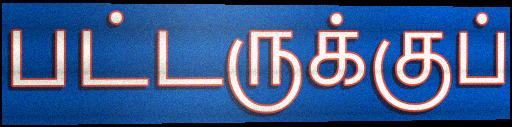
பட்டருக்குப்